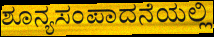
ಶೂನ್ಯಸಂಪಾದನೆಯಲ್ಲಿ